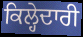
ਕਿਲ੍ਹੇਦਾਰੀ